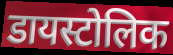
डायस्टोलिक